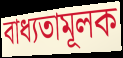
বাধ্যতামূলক